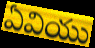
ఏవియు